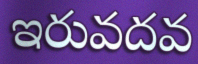
ఇరువదవ